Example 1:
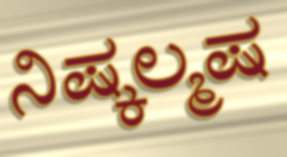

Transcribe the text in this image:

ನಿಷ್ಕಲ್ಮಷ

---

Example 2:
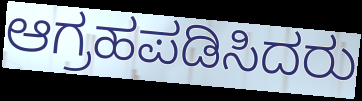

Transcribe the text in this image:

ಆಗ್ರಹಪಡಿಸಿದರು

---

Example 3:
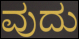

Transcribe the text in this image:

ವುದು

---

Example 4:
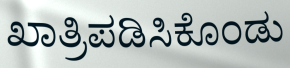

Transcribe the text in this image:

ಖಾತ್ರಿಪಡಿಸಿಕೊಂಡು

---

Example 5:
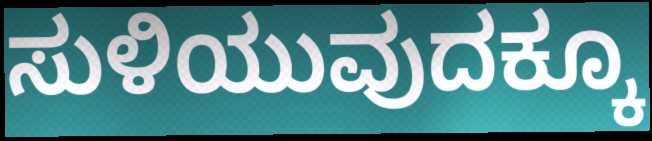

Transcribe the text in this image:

ಸುಳಿಯುವುದಕ್ಕೂ